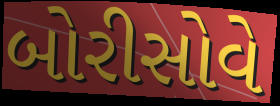
બોરીસોવે